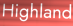
Highland